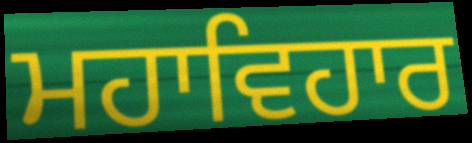
ਮਹਾਵਿਹਾਰ